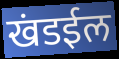
खंडईल